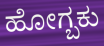
ಹೋಗ್ಬಕು